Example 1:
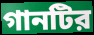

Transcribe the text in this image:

গানটির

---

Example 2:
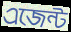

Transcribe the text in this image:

এজেন্ট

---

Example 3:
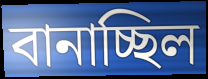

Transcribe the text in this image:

বানাচ্ছিল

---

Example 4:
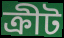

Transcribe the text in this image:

ক্রীট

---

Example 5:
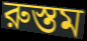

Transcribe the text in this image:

রুস্তম